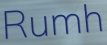
Rumh